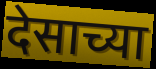
देसाच्या